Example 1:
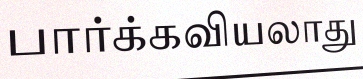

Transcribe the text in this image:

பார்க்கவியலாது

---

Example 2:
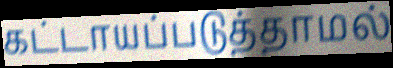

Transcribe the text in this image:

கட்டாயப்படுத்தாமல்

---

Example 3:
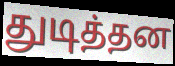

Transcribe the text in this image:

துடித்தன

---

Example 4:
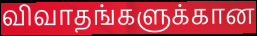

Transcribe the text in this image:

விவாதங்களுக்கான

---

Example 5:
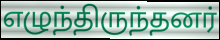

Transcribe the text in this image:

எழுந்திருந்தனர்